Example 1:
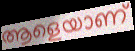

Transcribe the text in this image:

ആളെയാണ്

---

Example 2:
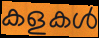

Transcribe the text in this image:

കളകൾ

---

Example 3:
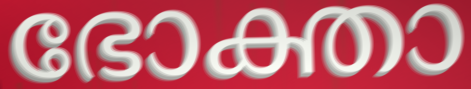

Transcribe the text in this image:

ഭോക്താ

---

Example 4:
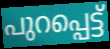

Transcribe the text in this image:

പുറപ്പെട്ട്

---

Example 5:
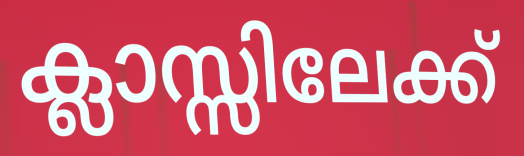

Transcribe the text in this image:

ക്ലാസ്സിലേക്ക്